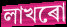
লাখৰো